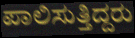
ಪಾಲಿಸುತ್ತಿದ್ದರು